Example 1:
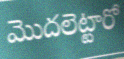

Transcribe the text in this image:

మొదలెట్టారో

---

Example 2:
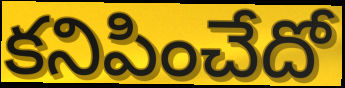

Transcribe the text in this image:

కనిపించేదో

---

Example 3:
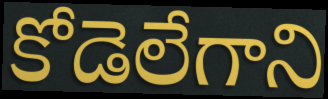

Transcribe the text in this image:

కోడెలేగాని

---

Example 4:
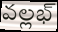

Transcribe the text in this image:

వల్లభ్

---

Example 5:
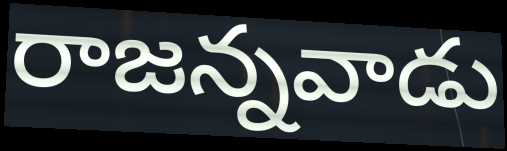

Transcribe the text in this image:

రాజన్నవాడు